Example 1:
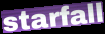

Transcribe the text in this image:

starfall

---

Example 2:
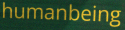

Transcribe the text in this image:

humanbeing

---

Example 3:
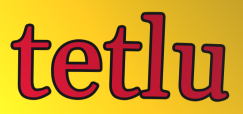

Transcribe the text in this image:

tetlu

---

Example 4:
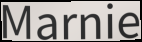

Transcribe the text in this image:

Marnie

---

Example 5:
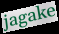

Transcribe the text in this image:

jagake